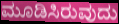
ಮೂಡಿಸಿರುವುದು